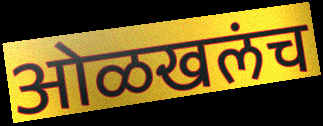
ओळखलंच